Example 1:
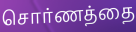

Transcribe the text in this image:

சொர்ணத்தை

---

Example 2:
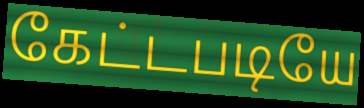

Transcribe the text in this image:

கேட்டபடியே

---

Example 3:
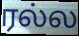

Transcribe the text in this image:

ரல்ல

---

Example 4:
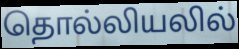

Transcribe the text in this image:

தொல்லியலில்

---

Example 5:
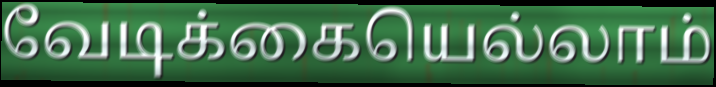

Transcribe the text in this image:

வேடிக்கையெல்லாம்